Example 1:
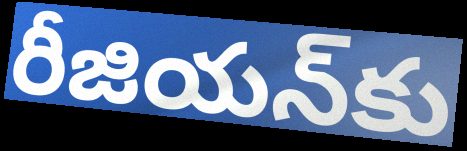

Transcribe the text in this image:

రీజియన్‌కు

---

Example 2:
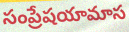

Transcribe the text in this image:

సంప్రేషయామాస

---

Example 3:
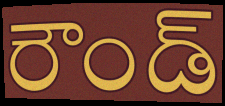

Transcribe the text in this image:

రౌండ్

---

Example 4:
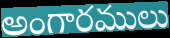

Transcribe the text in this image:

అంగారములు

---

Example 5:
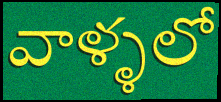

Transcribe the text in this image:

వాళ్ళలో